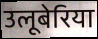
उलूबेरिया